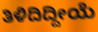
ತಿಳಿದಿದ್ದೀಯೆ